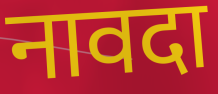
नावदा